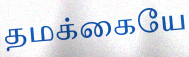
தமக்கையே